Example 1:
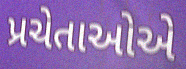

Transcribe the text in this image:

પ્રચેતાઓએ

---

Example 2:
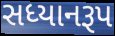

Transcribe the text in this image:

સધ્યાનરૂપ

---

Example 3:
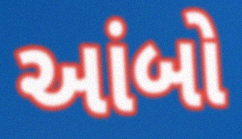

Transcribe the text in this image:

આંબો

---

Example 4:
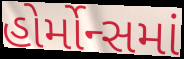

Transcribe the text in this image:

હોર્મોન્સમાં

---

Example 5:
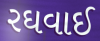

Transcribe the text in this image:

રઘવાઈ